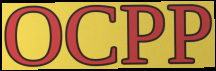
OCPP